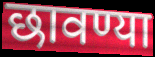
छावण्या